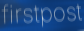
firstpost